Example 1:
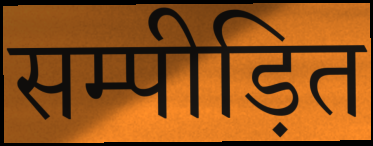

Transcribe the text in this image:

सम्पीड़ित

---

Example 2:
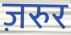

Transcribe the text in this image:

ज़रुर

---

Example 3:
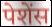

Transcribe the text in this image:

पेशेंस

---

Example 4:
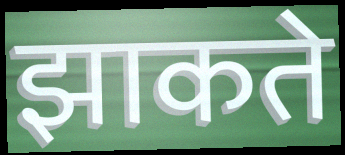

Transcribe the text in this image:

झाकते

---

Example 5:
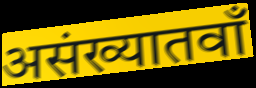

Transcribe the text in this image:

असंख्यातवाँ